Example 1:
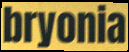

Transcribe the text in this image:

bryonia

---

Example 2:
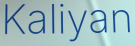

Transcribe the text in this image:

Kaliyan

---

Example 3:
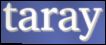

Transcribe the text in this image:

taray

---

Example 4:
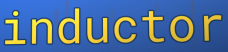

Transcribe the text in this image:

inductor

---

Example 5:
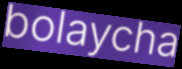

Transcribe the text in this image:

bolaycha